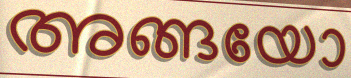
അങ്ങയോ